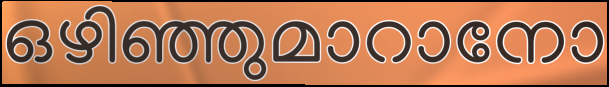
ഒഴിഞ്ഞുമാറാനോ